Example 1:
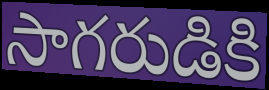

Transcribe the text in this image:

సాగరుడికి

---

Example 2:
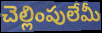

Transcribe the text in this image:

చెల్లింపులేమీ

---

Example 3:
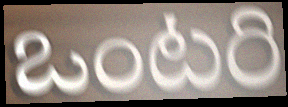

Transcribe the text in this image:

ఒంటరి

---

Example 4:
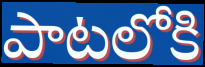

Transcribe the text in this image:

పాటలోకి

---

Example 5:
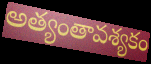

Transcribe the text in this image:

అత్యంతావశ్యకం